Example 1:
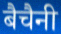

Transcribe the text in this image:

बैचैनी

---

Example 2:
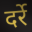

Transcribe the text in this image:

दर्रे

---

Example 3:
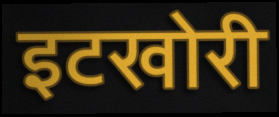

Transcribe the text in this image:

इटखोरी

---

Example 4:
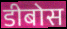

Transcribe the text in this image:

डीबोस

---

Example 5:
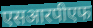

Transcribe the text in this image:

एसआरपीएफ